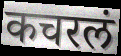
कचरलं